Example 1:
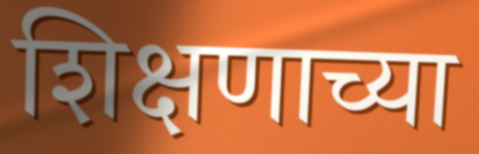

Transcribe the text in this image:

शिक्षणाच्या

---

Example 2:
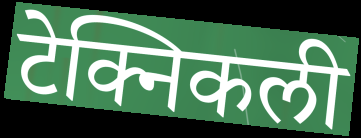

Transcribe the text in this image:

टेक्निकली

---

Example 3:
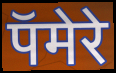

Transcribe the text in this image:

पॅमेरे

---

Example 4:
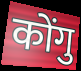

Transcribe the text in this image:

कोंगु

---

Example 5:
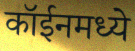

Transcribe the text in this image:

कॉईनमध्ये